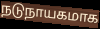
நடுநாயகமாக